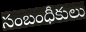
సంబంధీకులు